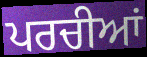
ਪਰਚੀਆਂ